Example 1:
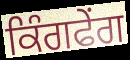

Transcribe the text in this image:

ਕਿੰਗਫੇਂਗ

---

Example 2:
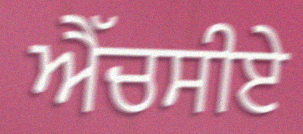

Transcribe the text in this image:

ਐੱਚਸੀਏ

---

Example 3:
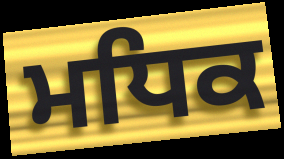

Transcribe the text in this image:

ਮਧਿਕ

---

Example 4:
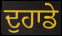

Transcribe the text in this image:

ਦੁਹਾਡੇ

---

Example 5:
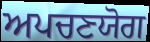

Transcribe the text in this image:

ਅਪਚਣਯੋਗ